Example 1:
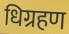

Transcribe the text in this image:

धिग्रहण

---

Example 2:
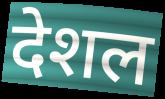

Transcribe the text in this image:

देशल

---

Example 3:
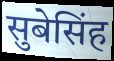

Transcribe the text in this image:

सुबेसिंह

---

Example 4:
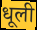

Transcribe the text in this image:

धूली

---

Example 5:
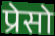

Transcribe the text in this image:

प्रेसो